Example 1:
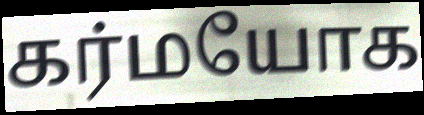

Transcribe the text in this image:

கர்மயோக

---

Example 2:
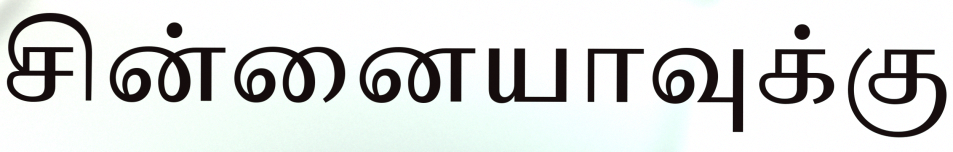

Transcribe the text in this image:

சின்னையாவுக்கு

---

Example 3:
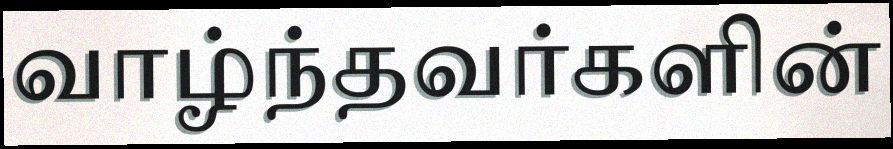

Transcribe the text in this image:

வாழ்ந்தவர்களின்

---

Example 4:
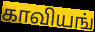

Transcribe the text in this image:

காவியங்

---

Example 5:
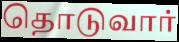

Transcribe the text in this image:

தொடுவார்